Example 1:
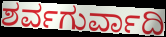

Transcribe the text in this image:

ಶರ್ವಗುರ್ವಾದಿ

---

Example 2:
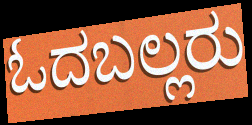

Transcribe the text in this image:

ಓದಬಲ್ಲರು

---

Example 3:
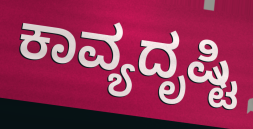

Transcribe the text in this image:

ಕಾವ್ಯದೃಷ್ಟಿ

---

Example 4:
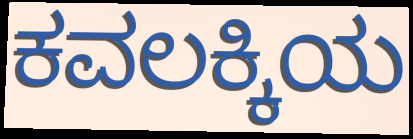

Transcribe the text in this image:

ಕವಲಕ್ಕಿಯ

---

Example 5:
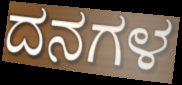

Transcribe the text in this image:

ದನಗಳ